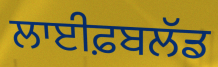
ਲਾਈਫ਼ਬਲੱਡ